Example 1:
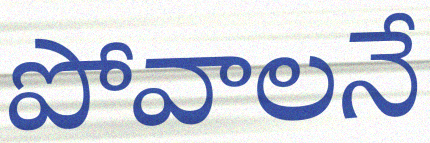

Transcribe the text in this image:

పోవాలనే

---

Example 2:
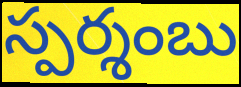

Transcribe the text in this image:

స్పర్శంబు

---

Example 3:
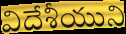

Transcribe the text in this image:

విదేశీయుని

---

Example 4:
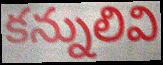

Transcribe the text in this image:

కన్నులివి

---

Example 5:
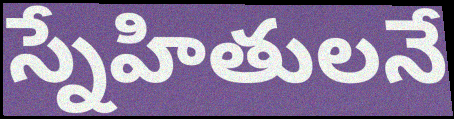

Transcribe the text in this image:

స్నేహితులనే